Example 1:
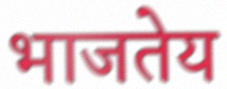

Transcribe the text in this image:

भाजतेय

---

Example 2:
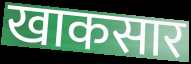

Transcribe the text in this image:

खाकसार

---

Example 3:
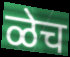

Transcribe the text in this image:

ळेच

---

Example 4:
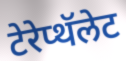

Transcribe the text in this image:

टेरेप्थॅलेट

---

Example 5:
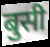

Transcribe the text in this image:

बुसी